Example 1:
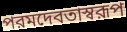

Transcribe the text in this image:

পরমদেবতাস্বরূপ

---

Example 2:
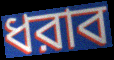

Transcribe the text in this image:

ধরাব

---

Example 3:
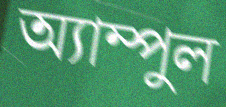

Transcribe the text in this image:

অ্যাম্পুল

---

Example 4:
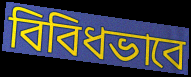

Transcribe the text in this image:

বিবিধভাবে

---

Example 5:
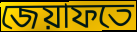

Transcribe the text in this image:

জেয়াফতে